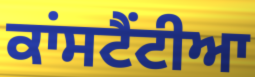
ਕਾਂਸਟੈਂਟੀਆ